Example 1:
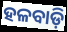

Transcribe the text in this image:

ହଳବାଡ଼ି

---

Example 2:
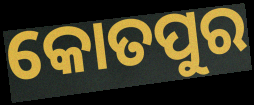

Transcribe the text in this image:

କୋତପୁର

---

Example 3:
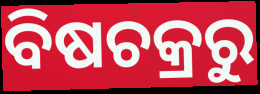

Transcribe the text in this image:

ବିଷଚକ୍ରରୁ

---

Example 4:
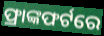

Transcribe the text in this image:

ଫ୍ରାଙ୍କଫର୍ଟରେ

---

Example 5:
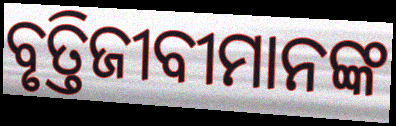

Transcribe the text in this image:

ବୃତ୍ତିଜୀବୀମାନଙ୍କ